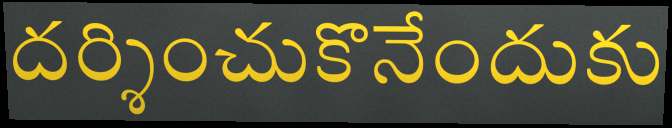
దర్శించుకొనేందుకు